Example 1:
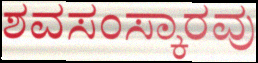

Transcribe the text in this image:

ಶವಸಂಸ್ಕಾರವು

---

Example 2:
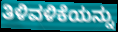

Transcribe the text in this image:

ತಿಳಿವಳಿಕೆಯನ್ನು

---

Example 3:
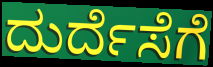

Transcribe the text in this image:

ದುರ್ದೆಸೆಗೆ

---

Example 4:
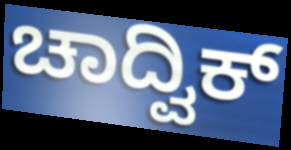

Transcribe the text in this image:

ಚಾದ್ವಿಕ್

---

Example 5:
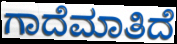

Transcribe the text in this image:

ಗಾದೆಮಾತಿದೆ